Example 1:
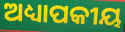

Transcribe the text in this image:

ଅଧ୍ୟାପକୀୟ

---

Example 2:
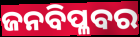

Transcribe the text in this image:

ଜନବିପ୍ଳବର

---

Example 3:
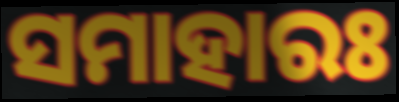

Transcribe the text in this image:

ସମାହାରଃ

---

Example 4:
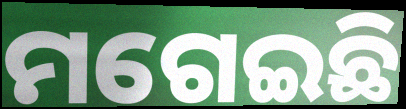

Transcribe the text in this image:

ମଗେଇଛି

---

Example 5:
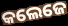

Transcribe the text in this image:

କଲେଜେ